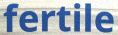
fertile